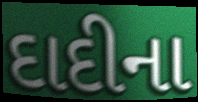
દાદીના